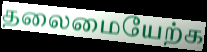
தலைமையேற்க